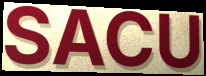
SACU